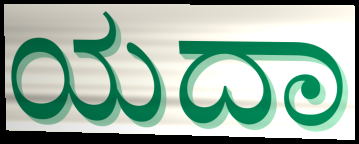
ಯದಾ